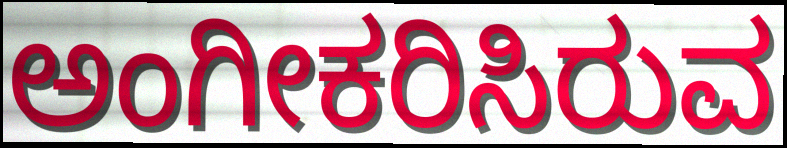
ಅಂಗೀಕರಿಸಿರುವ